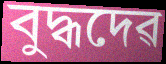
বুদ্ধদেৱ